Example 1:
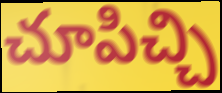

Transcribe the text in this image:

చూపిచ్చి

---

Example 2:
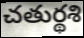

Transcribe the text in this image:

చతుర్థశి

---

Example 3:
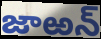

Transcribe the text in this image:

జాఱన్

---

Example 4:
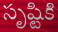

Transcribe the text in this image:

సృష్టికి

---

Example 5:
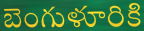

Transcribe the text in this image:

బెంగుళూరికి